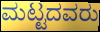
ಮಟ್ಟದವರು